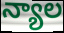
న్యాల